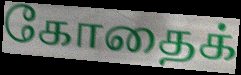
கோதைக்